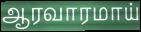
ஆரவாரமாய்